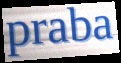
praba